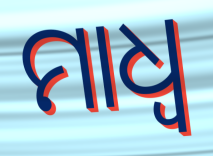
ମାଧ୍ଵ